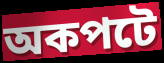
অকপটে